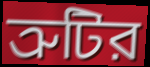
ত্রুটির